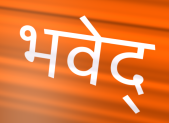
भवेद्